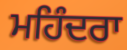
ਮਹਿੰਦਰਾ